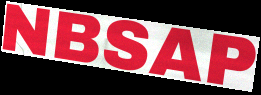
NBSAP